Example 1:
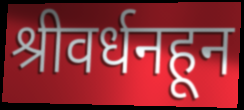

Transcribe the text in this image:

श्रीवर्धनहून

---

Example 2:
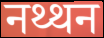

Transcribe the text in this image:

नथ्थन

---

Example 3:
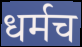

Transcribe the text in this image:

धर्मच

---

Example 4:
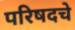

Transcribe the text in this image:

परिषदचे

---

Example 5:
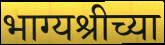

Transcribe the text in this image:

भाग्यश्रीच्या